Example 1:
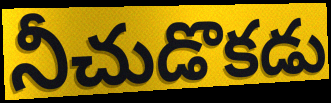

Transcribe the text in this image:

నీచుడొకడు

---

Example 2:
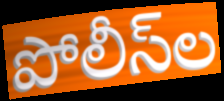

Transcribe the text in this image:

పోలీస్‌ల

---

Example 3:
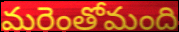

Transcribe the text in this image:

మరెంతోమంది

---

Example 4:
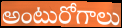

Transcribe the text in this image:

అంటురోగాలు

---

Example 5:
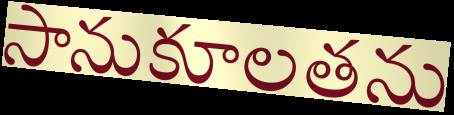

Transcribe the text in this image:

సానుకూలతను